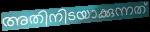
അതിനിടയാക്കുന്നത്